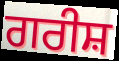
ਗਰੀਸ਼